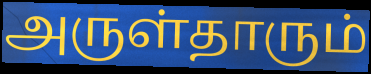
அருள்தாரும்